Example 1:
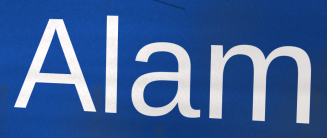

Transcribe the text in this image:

Alam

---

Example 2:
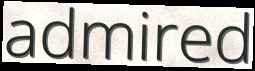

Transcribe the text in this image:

admired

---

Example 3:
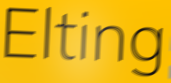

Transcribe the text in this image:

Elting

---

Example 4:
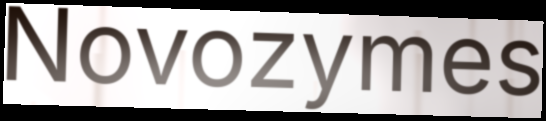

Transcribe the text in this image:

Novozymes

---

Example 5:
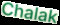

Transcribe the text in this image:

Chalak